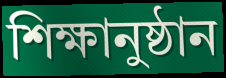
শিক্ষানুষ্ঠান